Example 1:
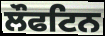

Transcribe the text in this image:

ਲੌਫਟਿਨ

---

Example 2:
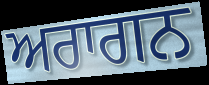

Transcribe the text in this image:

ਅਰਾਗਨ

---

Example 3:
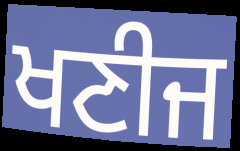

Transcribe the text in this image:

ਖਣੀਜ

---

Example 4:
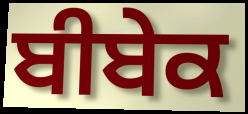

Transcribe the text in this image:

ਬੀਬੇਕ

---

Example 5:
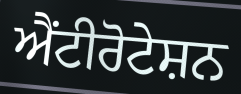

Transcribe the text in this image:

ਐਂਟੀਰੋਟੇਸ਼ਨ